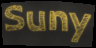
Suny